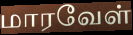
மாரவேள்